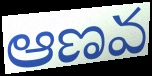
ఆణవ